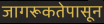
जागरूकतेपासून